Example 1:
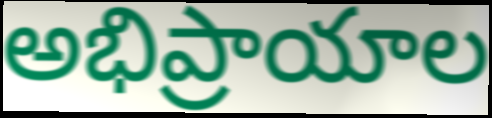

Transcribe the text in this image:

అభిప్రాయాల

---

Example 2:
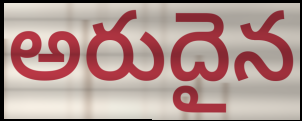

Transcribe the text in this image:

అరుదైన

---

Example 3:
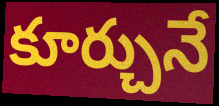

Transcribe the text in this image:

కూర్చునే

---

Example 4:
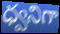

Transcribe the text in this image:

ధ్వనిగా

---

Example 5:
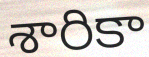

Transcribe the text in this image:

శారికా